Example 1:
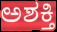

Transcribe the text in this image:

ಅಶಕ್ತಿ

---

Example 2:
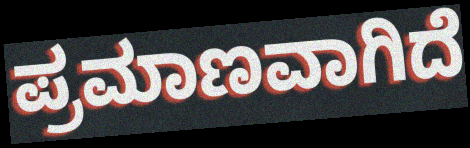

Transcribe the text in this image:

ಪ್ರಮಾಣವಾಗಿದೆ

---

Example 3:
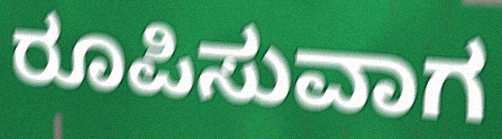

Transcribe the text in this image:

ರೂಪಿಸುವಾಗ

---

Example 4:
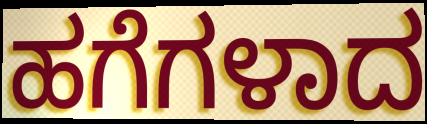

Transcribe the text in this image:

ಹಗೆಗಳಾದ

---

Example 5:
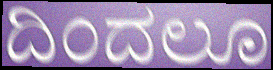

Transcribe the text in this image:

ದಿಂದಲೂ